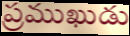
ప్రముఖుడు